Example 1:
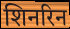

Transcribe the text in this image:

शिनरिन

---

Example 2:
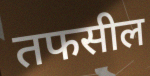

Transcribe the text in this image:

तफसील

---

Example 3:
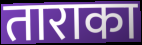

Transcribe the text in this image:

ताराका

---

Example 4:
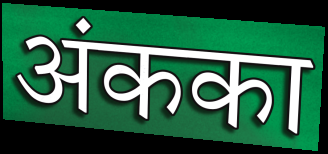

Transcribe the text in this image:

अंकका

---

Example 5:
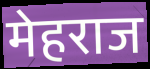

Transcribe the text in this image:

मेहराज